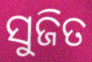
ସୁଜିତ